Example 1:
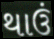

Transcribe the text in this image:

થાઉં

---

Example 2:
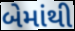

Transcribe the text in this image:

બેમાંથી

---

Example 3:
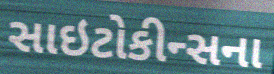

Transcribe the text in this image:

સાઇટોકીન્સના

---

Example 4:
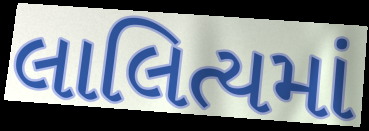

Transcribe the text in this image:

લાલિત્યમાં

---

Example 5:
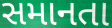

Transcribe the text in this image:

સમાનતા